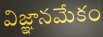
విజ్ఞానమేకం